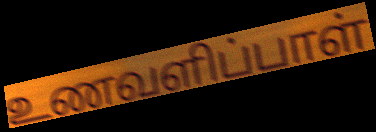
உணவளிப்பாள்